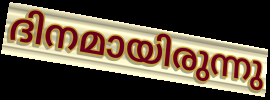
ദിനമായിരുന്നു